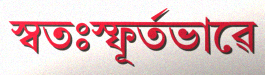
স্বতঃস্ফূৰ্তভাৱে